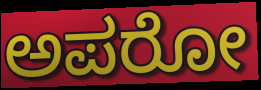
ಅಪರೋ